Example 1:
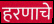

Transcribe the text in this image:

हरणाचे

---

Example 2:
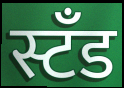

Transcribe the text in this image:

स्टँड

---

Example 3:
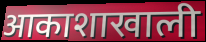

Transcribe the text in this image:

आकाशाखाली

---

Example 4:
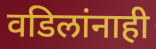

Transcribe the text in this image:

वडिलांनाही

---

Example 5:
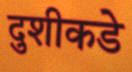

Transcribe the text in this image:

दुशीकडे